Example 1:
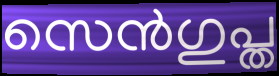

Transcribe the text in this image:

സെൻഗുപ്ത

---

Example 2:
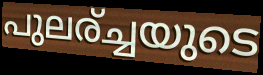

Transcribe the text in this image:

പുലര്ച്ചയുടെ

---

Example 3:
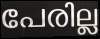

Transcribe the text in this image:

പേരില്ല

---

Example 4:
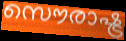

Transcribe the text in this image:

സൌരാഷ്ട്ര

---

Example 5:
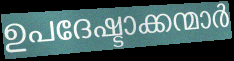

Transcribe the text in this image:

ഉപദേഷ്ടാക്കന്മാർ